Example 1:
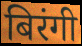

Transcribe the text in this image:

बिरंगी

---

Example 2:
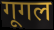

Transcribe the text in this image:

गूगल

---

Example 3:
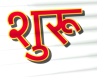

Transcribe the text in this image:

शुरू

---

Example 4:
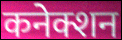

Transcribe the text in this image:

कनेक्शन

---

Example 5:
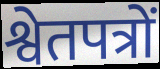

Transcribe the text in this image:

श्वेतपत्रों